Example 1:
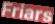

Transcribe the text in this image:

Friars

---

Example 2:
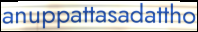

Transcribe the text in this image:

anuppattasadattho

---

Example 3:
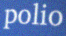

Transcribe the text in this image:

polio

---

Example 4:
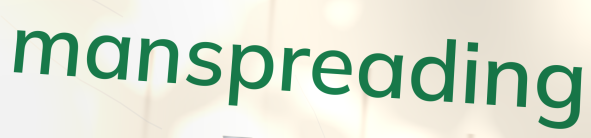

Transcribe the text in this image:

manspreading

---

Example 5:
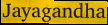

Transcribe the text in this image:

Jayagandha